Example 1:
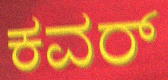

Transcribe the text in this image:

ಕವರ್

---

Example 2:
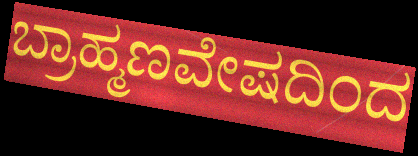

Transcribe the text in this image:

ಬ್ರಾಹ್ಮಣವೇಷದಿಂದ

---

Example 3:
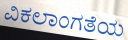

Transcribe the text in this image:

ವಿಕಲಾಂಗತೆಯ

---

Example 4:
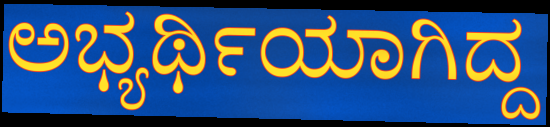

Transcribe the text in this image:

ಅಭ್ಯರ್ಥಿಯಾಗಿದ್ದ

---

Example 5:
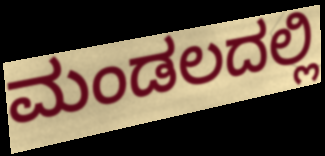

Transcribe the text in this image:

ಮಂಡಲದಲ್ಲಿ